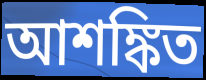
আশঙ্কিত